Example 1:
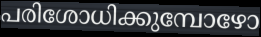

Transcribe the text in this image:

പരിശോധിക്കുമ്പോഴോ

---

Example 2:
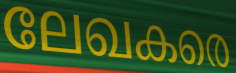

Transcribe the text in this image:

ലേഖകരെ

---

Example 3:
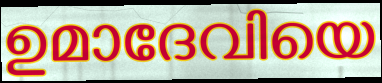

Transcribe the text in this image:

ഉമാദേവിയെ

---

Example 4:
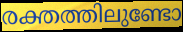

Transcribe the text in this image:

രക്തത്തിലുണ്ടോ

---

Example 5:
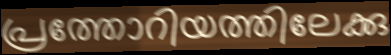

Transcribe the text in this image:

പ്രത്തോറിയത്തിലേക്കു